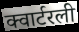
क्वार्टरली